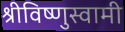
श्रीविष्णुस्वामी